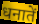
धनातें